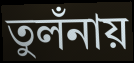
তুলঁনায়